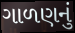
ગાળણનું